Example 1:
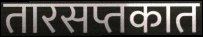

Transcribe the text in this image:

तारसप्तकात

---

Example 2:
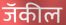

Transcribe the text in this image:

जॅकील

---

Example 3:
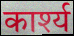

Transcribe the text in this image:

कार्श्य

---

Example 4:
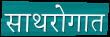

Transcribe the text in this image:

साथरोगात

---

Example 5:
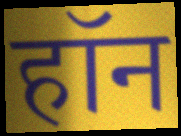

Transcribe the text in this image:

हॉन